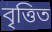
বৃত্তিত